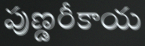
పుణ్డరీకాయ